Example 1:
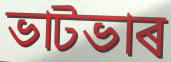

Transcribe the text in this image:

ভাটভাৰ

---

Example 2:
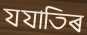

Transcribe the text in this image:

যযাতিৰ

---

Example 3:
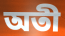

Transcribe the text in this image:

অতী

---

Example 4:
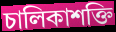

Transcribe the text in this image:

চালিকাশক্তি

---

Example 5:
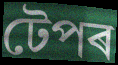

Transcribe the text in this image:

টেপৰ